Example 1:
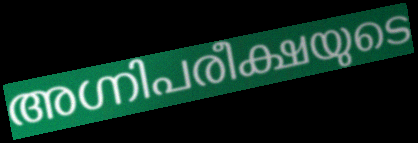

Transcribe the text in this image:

അഗ്നിപരീക്ഷയുടെ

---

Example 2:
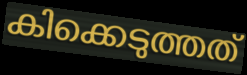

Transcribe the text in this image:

കിക്കെടുത്തത്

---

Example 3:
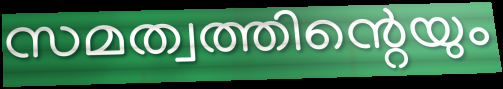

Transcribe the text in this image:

സമത്വത്തിന്റെയും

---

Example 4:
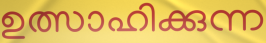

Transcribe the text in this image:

ഉത്സാഹിക്കുന്ന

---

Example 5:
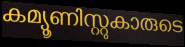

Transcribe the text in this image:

കമ്യൂണിസ്റ്റുകാരുടെ